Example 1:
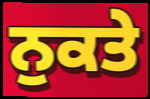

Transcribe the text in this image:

ਨੁਕਤੇ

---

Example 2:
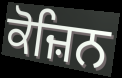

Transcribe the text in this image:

ਕੋਜ਼ਿਨ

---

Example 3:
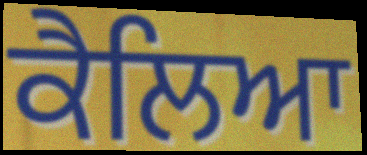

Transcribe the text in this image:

ਕੈਲਿਆ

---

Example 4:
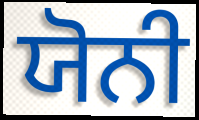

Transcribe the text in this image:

ਯੋਨੀ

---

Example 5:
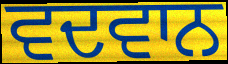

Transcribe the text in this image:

ਵਦਵਾਨ